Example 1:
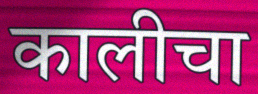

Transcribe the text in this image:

कालीचा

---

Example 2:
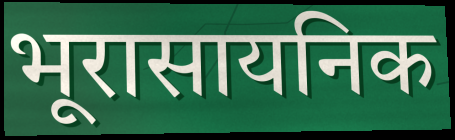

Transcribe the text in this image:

भूरासायनिक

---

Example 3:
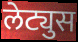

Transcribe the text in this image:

लेट्युस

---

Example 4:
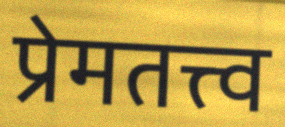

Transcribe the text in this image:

प्रेमतत्त्व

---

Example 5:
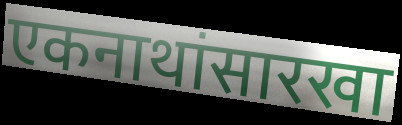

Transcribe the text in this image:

एकनाथांसारखा